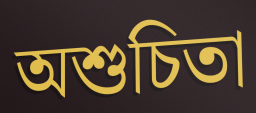
অশুচিতা